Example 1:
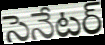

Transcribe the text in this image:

సెనేటర్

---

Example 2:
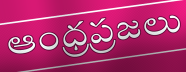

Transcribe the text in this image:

ఆంధ్రప్రజలు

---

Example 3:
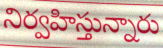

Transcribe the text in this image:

నిర్వహిస్తున్నారు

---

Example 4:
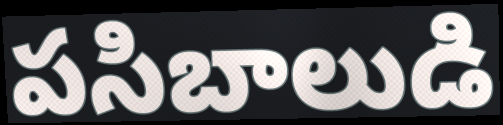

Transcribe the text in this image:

పసిబాలుడి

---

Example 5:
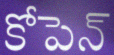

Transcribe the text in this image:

కోపెన్